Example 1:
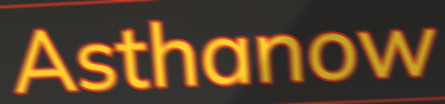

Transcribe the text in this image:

Asthanow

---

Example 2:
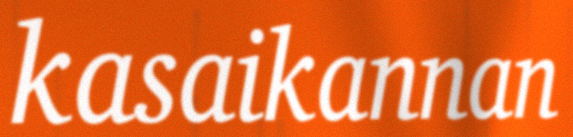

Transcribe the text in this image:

kasaikannan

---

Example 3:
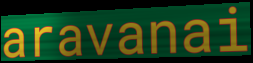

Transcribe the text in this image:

aravanai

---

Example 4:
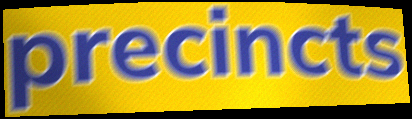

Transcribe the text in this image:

precincts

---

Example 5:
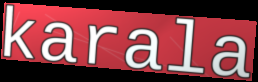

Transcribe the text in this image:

karala